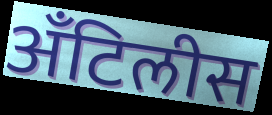
अँटिलीस